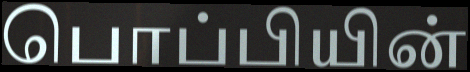
பொப்பியின்